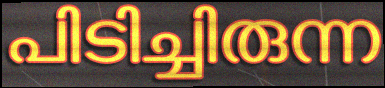
പിടിച്ചിരുന്ന